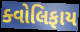
ક્વોલિફાય